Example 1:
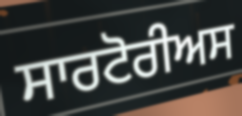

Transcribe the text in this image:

ਸਾਰਟੋਰੀਅਸ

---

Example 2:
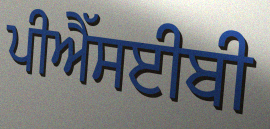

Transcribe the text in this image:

ਪੀਐੱਸਈਬੀ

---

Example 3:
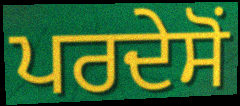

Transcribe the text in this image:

ਪਰਦੇਸੋਂ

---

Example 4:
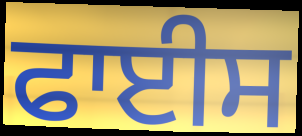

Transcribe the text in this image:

ਫਾਈਸ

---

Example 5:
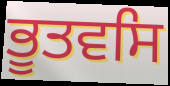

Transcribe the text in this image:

ਭੂਤਵਸਿ